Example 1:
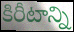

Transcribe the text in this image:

కిరీటాన్ని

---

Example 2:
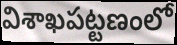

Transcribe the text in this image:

విశాఖపట్టణంలో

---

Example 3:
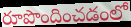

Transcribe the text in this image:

రూపొందించడంలో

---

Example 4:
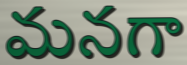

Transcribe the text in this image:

మనగా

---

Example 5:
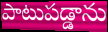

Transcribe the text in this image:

పాటుపడ్డాను